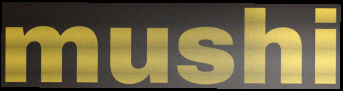
mushi